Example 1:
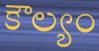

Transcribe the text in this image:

కౌల్యం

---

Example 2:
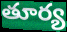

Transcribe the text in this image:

తూర్య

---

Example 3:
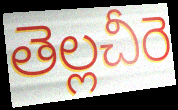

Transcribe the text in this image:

తెల్లచీరె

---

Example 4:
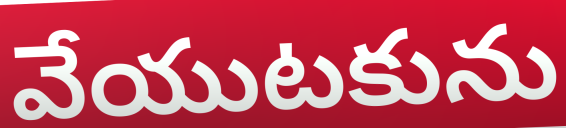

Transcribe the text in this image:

వేయుటకును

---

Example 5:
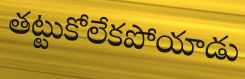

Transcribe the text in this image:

తట్టుకోలేకపోయాడు